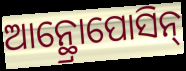
ଆନ୍ଥ୍ରୋପୋସିନ୍